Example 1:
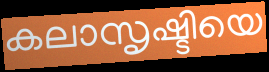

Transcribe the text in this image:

കലാസൃഷ്ടിയെ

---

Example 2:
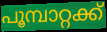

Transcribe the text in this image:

പൂമ്പാറ്റക്ക്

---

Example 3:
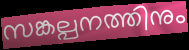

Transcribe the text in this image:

സങ്കല്പനത്തിനും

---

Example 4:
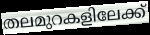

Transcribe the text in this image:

തലമുറകളിലേക്ക്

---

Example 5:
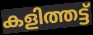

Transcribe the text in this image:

കളിത്തട്ട്